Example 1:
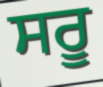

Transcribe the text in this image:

ਸਰੂ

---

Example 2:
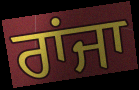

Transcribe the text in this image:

ਰਾਂਜਾ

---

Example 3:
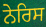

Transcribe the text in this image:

ਨੇਰਿਸ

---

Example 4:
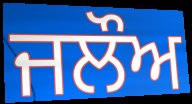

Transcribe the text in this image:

ਜਲੌਅ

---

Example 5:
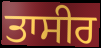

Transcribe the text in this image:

ਤਾਸੀਰ